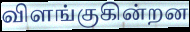
விளங்குகின்றன